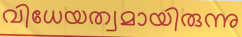
വിധേയത്വമായിരുന്നു